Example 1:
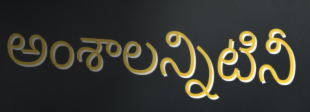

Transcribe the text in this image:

అంశాలన్నిటినీ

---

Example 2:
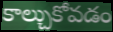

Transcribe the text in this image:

కాల్చుకోవడం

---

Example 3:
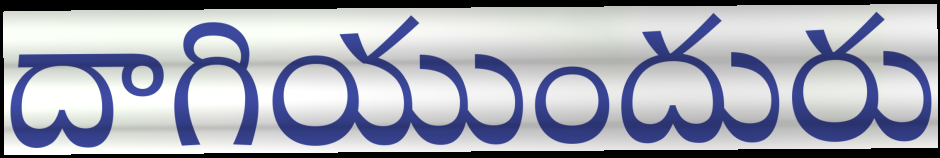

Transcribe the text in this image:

దాగియుందురు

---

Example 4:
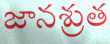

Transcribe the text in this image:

జానశ్రుత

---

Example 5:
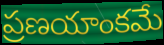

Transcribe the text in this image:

ప్రణయాంకమే